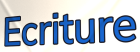
Ecriture